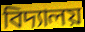
বিদ্যালয়